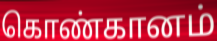
கொண்கானம்